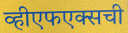
व्हीएफएक्सची